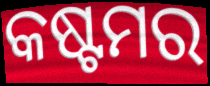
କଷ୍ଟମର